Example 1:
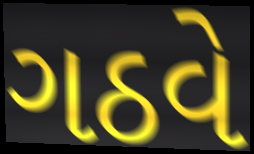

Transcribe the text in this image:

ગઠવે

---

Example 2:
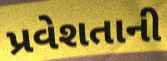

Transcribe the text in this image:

પ્રવેશતાની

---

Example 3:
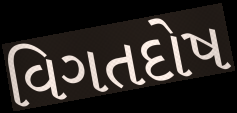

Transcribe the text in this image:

વિગતદોષ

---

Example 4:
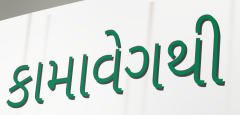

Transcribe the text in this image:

કામાવેગથી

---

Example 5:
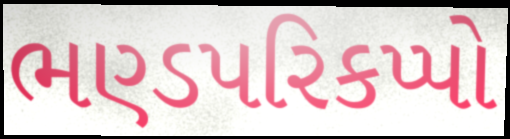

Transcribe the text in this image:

ભણ્ડપરિકપ્પો